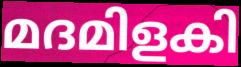
മദമിളകി